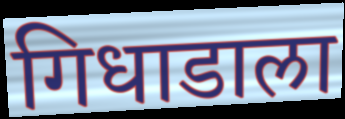
गिधाडाला